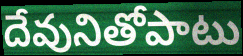
దేవునితోపాటు